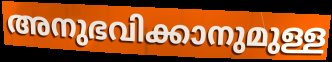
അനുഭവിക്കാനുമുള്ള